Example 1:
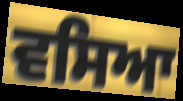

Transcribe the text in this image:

ਵਸਿਆ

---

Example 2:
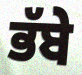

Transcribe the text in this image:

ਭੱਬੇ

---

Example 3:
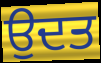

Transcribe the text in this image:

ਉਦਤ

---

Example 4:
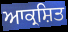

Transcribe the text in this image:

ਆਕ੍ਰਸ਼ਿਤ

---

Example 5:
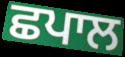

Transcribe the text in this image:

ਛਪਾਲ